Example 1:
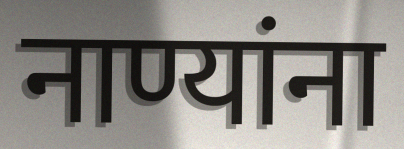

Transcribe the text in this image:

नाण्यांना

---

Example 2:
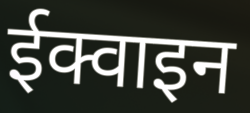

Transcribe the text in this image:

ईक्वाइन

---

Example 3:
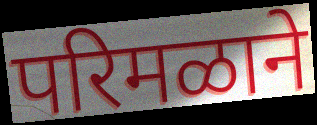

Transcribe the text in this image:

परिमळाने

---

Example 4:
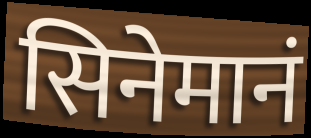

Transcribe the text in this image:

सिनेमानं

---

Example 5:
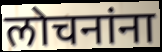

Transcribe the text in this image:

लोचनांना